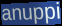
anuppi